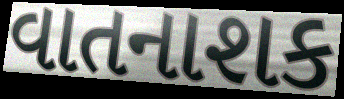
વાતનાશક